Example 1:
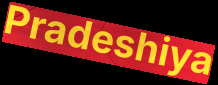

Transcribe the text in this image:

Pradeshiya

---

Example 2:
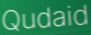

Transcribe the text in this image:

Qudaid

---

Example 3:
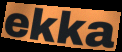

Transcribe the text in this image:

ekka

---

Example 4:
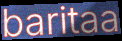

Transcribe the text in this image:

baritaa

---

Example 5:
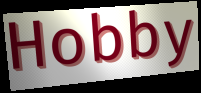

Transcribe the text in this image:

Hobby